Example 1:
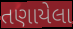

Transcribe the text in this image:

તણાયેલા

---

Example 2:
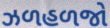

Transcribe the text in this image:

ઝળહળજો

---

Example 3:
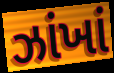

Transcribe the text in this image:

ઝાંખાં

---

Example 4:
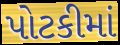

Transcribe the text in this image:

પોટકીમાં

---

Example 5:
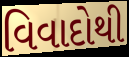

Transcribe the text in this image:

વિવાદોથી